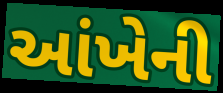
આંખેની